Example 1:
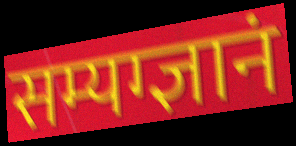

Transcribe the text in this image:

सम्यग्ज्ञानं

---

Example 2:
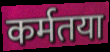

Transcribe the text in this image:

कर्मतया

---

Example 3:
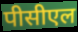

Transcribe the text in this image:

पीसीएल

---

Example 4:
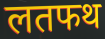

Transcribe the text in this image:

लतफथ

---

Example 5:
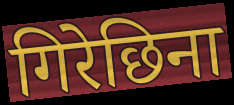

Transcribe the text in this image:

गिरेछिना